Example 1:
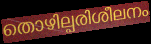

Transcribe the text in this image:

തൊഴില്പരിശീലനം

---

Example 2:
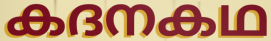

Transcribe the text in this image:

കദനകഥ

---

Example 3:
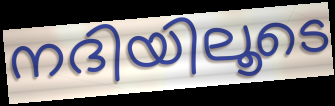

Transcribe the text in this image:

നദിയിലൂടെ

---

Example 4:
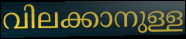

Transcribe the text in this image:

വിലക്കാനുള്ള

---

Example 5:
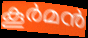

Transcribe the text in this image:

കൂർമൻ